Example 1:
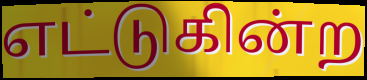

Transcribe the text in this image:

எட்டுகின்ற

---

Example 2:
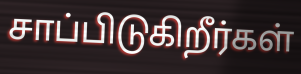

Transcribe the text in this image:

சாப்பிடுகிறீர்கள்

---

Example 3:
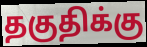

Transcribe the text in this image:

தகுதிக்கு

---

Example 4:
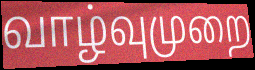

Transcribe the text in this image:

வாழ்வுமுறை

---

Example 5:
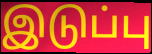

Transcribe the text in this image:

இடுப்பு